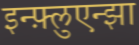
इन्फ़्लुएन्झा